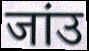
जांउ